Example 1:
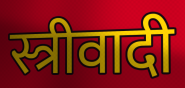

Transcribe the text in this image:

स्त्रीवादी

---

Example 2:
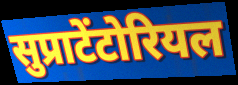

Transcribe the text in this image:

सुप्राटेंटोरियल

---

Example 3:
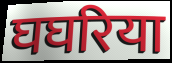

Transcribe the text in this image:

घघरिया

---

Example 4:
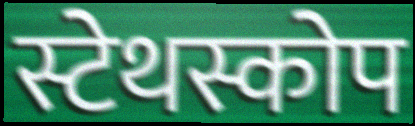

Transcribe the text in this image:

स्टेथस्कोप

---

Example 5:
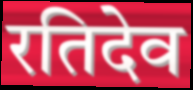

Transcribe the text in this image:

रतिदेव